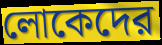
লোকেদের